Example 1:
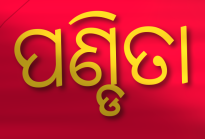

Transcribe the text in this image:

ପଣ୍ଡିତା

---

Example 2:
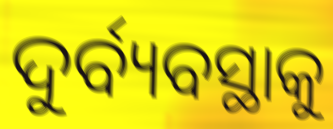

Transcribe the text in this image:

ଦୁର୍ବ୍ୟବସ୍ଥାକୁ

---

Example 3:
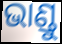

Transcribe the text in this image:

ଭାଣ୍ଡୁ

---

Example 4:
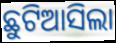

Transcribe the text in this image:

ଛୁଟିଆସିଲା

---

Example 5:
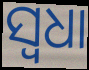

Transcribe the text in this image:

ସ୍ୱଧା